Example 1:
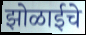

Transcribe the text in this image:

झोळाईचे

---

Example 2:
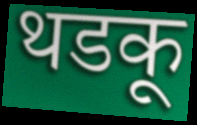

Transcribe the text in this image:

थडकू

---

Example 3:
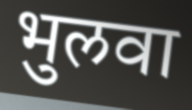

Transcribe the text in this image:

भुलवा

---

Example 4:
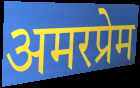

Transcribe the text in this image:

अमरप्रेम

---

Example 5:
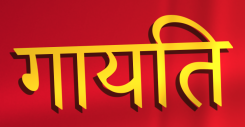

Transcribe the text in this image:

गायति